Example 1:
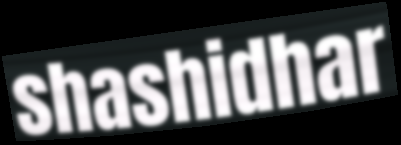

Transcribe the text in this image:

shashidhar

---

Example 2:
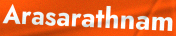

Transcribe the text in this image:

Arasarathnam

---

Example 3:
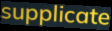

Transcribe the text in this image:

supplicate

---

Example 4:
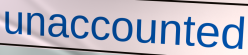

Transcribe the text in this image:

unaccounted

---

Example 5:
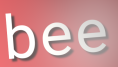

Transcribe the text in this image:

bee